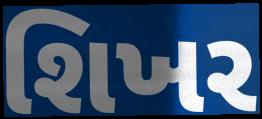
શિખર